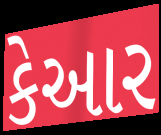
કેઆર